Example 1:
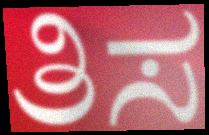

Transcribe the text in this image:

ತಿಸ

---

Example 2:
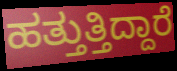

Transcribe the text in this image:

ಹತ್ತುತ್ತಿದ್ದಾರೆ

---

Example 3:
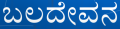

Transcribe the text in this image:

ಬಲದೇವನ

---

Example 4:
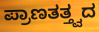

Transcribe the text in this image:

ಪ್ರಾಣತತ್ತ್ವದ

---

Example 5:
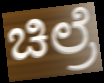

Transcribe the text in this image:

ಚಿಲ್ರೆ